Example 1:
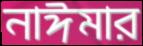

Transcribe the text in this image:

নাঈমার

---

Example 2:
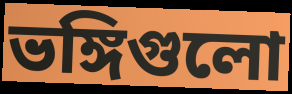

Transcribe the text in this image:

ভঙ্গিগুলো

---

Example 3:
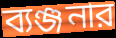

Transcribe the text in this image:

ব্যঞ্জনার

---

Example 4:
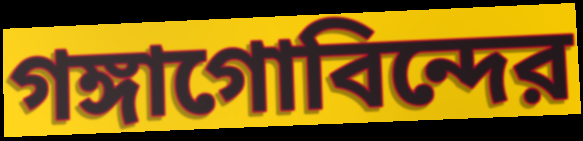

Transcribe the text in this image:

গঙ্গাগোবিন্দের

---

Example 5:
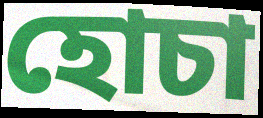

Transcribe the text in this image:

হোচা